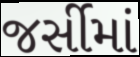
જર્સીમાં